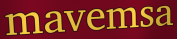
mavemsa